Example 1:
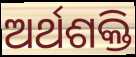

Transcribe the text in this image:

ଅର୍ଥଶକ୍ତି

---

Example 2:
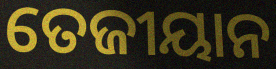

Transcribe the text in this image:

ତେଜୀୟାନ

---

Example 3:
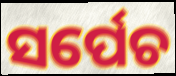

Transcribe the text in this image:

ସର୍ପେଚ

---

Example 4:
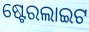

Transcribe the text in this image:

ଷ୍ଟେରଲାଇଟ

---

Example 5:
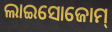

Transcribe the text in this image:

ଲାଇସୋଜୋମ୍